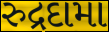
રુદ્રદામા